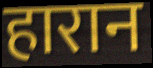
हारान